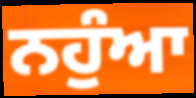
ਨਹੁੰਆ